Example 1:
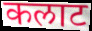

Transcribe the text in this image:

कलाट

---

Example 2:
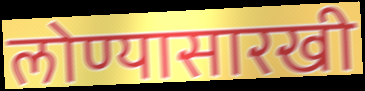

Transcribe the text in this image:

लोण्यासारखी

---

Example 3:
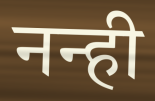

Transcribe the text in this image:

नन्ही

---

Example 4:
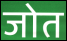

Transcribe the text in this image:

जोत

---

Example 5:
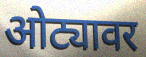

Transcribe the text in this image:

ओट्यावर